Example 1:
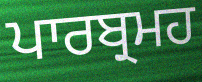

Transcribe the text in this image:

ਪਾਰਬ੍ਰਮਹ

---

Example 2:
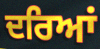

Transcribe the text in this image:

ਦਰਿਆਂ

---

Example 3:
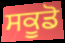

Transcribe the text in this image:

ਸਕੂਡੋ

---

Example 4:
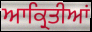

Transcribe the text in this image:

ਆਕ੍ਰਿਤੀਆਂ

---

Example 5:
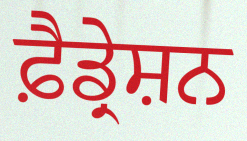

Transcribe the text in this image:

ਫ਼ੈਡ੍ਰੇਸ਼ਨ